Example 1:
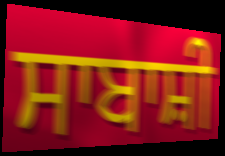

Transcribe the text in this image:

ਸਾਬਾਸ਼ੀ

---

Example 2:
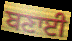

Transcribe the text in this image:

ਬਣਾਈ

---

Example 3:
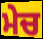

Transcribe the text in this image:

ਮੇਚ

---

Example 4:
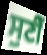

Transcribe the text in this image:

ਸੁਣੀਁ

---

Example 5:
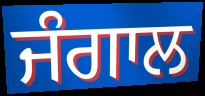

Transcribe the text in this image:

ਜੰਗਾਲ